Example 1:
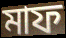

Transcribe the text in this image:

মাফ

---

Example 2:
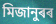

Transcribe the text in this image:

মিজানুৰৰ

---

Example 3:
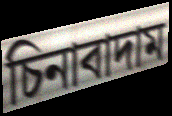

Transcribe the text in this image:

চিনাবাদাম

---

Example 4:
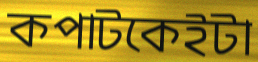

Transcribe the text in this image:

কপাটকেইটা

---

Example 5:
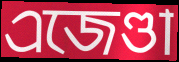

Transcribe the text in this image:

এজেণ্ডা